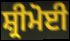
ਸ਼੍ਰੀਮੋਈ